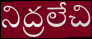
నిద్రలేచి